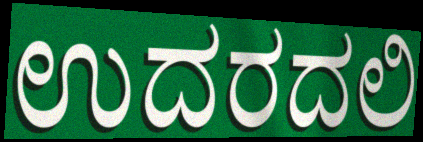
ಉದರದಲಿ